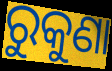
ରୁକୁଣା